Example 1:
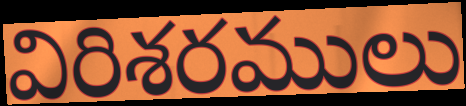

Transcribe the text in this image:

విరిశరములు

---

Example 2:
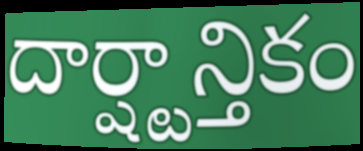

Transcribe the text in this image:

దార్ష్టాన్తికం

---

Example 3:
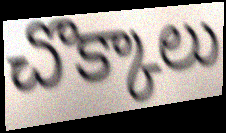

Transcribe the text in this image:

చొక్కాలు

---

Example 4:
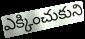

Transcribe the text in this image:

ఎక్కించుకుని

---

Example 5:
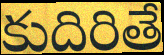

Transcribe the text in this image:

కుదిరితే